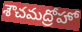
శౌచమద్రోహో